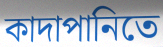
কাদাপানিতে